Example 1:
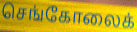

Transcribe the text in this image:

செங்கோலைக்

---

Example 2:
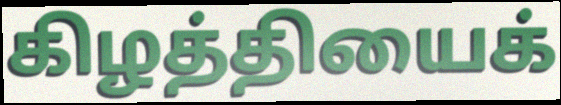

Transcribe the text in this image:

கிழத்தியைக்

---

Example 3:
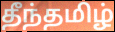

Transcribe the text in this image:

தீந்தமிழ்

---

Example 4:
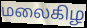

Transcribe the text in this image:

மலைகிழ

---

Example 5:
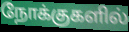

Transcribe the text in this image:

நோக்குகளில்